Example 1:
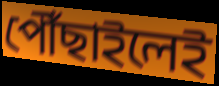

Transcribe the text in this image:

পৌঁছাইলেই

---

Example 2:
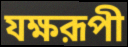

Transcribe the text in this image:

যক্ষরূপী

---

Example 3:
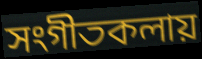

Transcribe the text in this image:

সংগীতকলায়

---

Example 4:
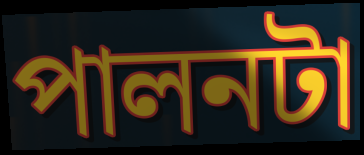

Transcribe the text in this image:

পালনটা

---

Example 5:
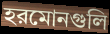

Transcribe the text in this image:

হরমোনগুলি